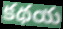
కథయ